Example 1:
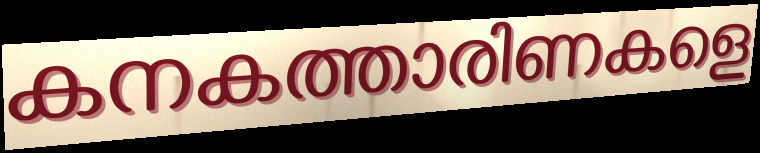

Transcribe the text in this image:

കനകത്താരിണകളെ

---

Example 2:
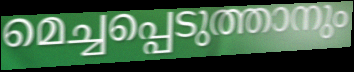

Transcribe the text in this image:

മെച്ചപ്പെടുത്താനും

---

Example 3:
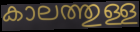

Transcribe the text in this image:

കാലത്തുള്ള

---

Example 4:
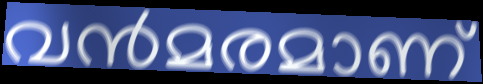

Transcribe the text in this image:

വൻമരമാണ്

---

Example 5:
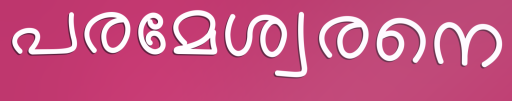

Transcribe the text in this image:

പരമേശ്വരനെ